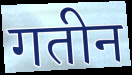
गतीन